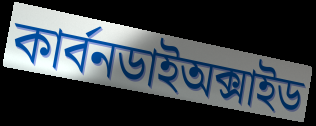
কার্বনডাইঅক্সাইড